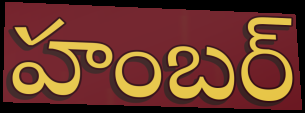
హంబర్